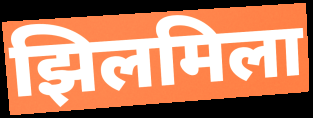
झिलमिला